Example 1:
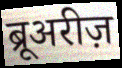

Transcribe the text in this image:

ब्रूअरीज़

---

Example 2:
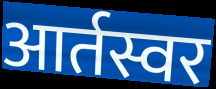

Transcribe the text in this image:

आर्तस्वर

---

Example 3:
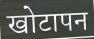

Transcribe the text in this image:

खोटापन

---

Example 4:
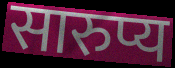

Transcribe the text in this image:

सारुप्य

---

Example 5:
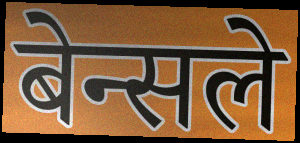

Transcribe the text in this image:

बेन्सले